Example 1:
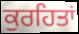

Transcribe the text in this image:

ਕੁਰਹਿਤਾਂ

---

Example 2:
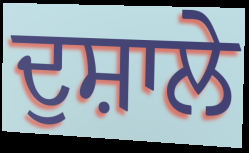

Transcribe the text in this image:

ਦੁਸ਼ਾਲੇ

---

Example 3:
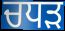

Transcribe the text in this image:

ਚਧੜ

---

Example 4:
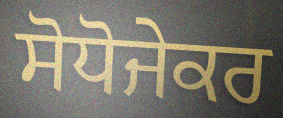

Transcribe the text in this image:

ਸੋਧੋਜੇਕਰ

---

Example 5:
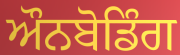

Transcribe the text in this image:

ਔਨਬੋਡਿੰਗ